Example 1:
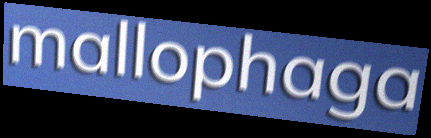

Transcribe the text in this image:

mallophaga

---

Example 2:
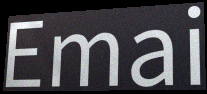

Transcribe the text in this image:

Emai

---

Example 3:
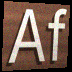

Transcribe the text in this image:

Af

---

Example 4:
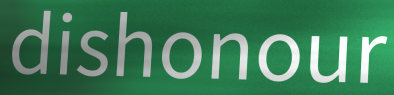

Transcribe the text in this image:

dishonour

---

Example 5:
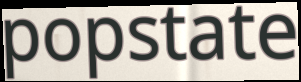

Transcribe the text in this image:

popstate